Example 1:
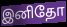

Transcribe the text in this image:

இனிதோ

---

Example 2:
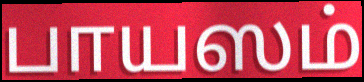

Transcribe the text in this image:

பாயஸம்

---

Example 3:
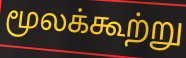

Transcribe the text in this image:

மூலக்கூற்று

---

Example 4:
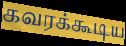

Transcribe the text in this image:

கவரக்கூடிய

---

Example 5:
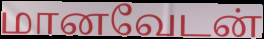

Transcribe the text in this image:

மானவேடன்